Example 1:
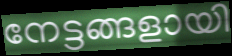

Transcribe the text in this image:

നേട്ടങ്ങളായി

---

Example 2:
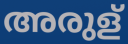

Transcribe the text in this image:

അരുള്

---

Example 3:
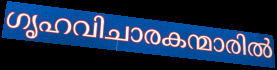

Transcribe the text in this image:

ഗൃഹവിചാരകന്മാരിൽ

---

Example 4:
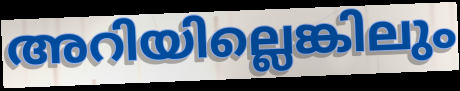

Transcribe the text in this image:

അറിയില്ലെങ്കിലും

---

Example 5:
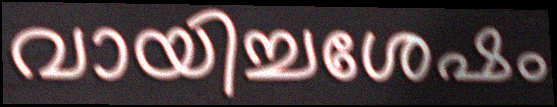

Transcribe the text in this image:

വായിച്ചശേഷം